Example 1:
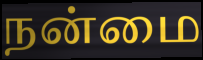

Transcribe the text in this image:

நன்மை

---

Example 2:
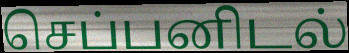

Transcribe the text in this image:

செப்பனிடல்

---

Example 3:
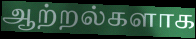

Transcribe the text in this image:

ஆற்றல்களாக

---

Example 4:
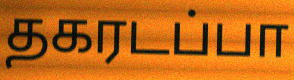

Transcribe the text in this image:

தகரடப்பா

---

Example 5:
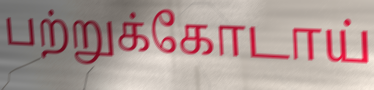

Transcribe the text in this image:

பற்றுக்கோடாய்